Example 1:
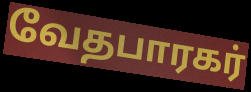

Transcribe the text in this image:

வேதபாரகர்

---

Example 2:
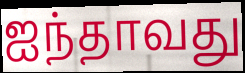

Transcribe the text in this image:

ஐந்தாவது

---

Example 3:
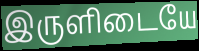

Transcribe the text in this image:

இருளிடையே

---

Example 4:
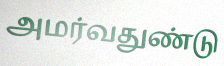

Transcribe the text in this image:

அமர்வதுண்டு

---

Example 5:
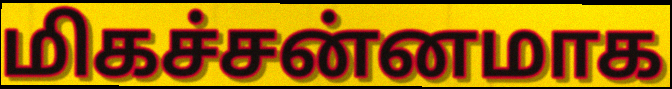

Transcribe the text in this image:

மிகச்சன்னமாக